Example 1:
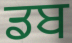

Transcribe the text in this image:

ਡਬ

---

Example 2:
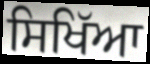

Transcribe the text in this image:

ਸਿਖਿੱਆ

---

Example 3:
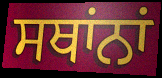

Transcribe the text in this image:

ਸਥਾਂਨਾਂ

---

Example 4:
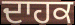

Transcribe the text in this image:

ਦਾਹਕ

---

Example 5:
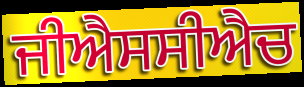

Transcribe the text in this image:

ਜੀਐਸਸੀਐਚ